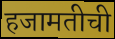
हजामतीची